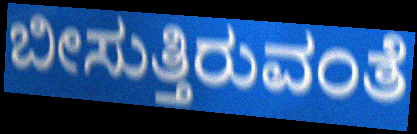
ಬೀಸುತ್ತಿರುವಂತೆ